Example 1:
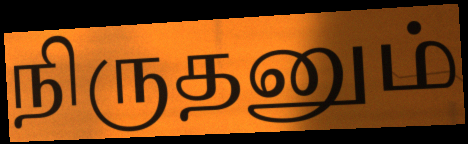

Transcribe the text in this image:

நிருதனும்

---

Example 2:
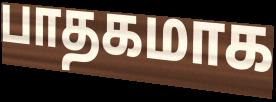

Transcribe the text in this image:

பாதகமாக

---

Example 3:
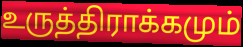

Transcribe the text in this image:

உருத்திராக்கமும்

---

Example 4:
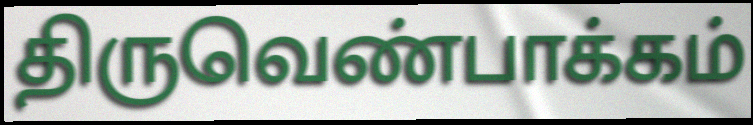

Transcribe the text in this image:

திருவெண்பாக்கம்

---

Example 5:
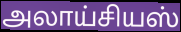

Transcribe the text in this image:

அலாய்சியஸ்